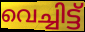
വെച്ചിട്ട്